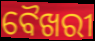
ବୈଖରୀ